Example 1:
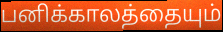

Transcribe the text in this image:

பனிக்காலத்தையும்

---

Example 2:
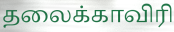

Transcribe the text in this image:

தலைக்காவிரி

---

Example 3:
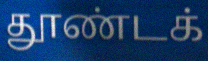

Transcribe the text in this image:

தூண்டக்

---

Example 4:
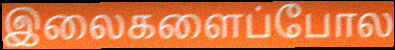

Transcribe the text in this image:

இலைகளைப்போல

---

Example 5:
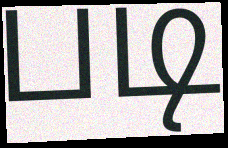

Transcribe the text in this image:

படி